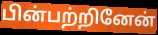
பின்பற்றினேன்